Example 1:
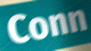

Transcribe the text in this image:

Conn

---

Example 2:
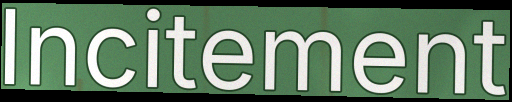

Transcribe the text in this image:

Incitement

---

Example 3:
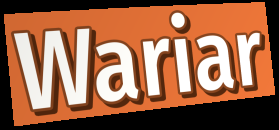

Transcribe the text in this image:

Wariar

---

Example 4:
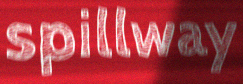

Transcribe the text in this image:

spillway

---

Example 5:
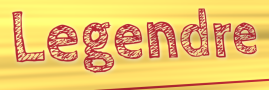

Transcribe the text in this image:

Legendre